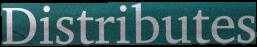
Distributes